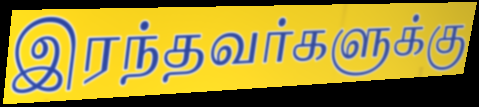
இரந்தவர்களுக்கு